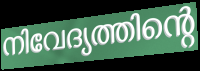
നിവേദ്യത്തിന്റെ